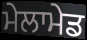
ਮੇਲਾਮੇਡ